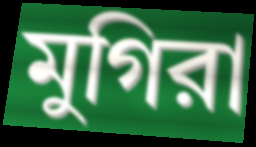
মুগিরা